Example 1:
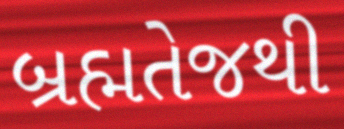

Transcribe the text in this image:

બ્રહ્મતેજથી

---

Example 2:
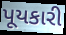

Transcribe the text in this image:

પૂયકારી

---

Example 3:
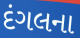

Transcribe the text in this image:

દંગલના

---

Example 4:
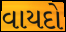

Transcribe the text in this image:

વાયદો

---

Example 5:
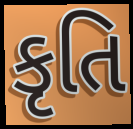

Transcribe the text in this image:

કૃતિ